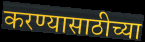
करण्यासाठीच्या